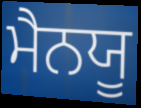
ਮੈਨਯੂ